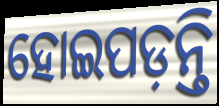
ହୋଇପଡ଼ନ୍ତି